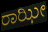
ರಾಝೀ